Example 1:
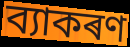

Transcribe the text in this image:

ব্যাকৰণ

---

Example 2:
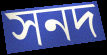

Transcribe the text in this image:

সনদ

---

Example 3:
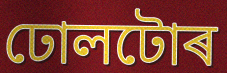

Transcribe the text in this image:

ঢোলটোৰ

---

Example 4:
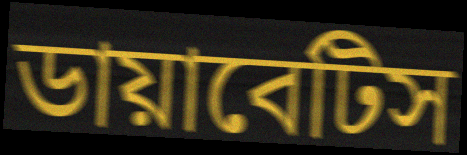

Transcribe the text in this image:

ডায়াবেটিস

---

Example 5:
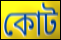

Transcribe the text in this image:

কোট